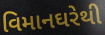
વિમાનઘરેથી